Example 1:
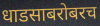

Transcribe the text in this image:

धाडसाबरोबरच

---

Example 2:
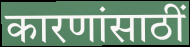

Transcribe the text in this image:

कारणांसाठीं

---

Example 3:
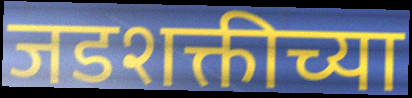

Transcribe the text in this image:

जडशक्तीच्या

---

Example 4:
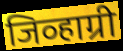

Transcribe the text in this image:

जिव्हाग्री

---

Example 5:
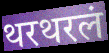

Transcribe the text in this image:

थरथरलं